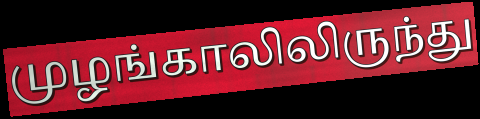
முழங்காலிலிருந்து